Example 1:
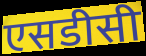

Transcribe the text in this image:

एसडीसी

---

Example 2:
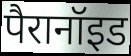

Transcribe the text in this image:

पैरानॉइड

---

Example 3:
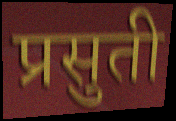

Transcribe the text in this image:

प्रसुती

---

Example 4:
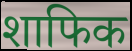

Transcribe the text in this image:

शाफिक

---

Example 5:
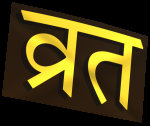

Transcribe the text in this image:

व्रत